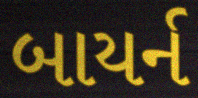
બાયર્ન